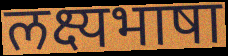
लक्ष्यभाषा